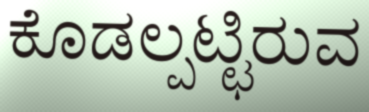
ಕೊಡಲ್ಪಟ್ಟಿರುವ